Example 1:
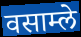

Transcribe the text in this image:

वसाम्ले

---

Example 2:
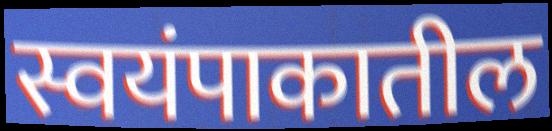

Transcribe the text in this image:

स्वयंपाकातील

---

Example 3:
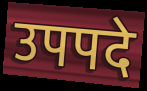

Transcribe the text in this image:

उपपदे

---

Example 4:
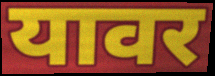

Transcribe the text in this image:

यावर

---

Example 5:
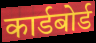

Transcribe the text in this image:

कार्डबोर्ड